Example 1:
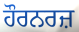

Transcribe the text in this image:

ਹੌਰਨਰਜ਼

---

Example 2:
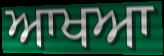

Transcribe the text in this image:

ਆਖਆ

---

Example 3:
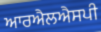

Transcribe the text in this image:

ਆਰਐਲਐਸਪੀ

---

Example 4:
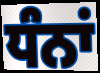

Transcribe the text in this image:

ਧੰਨਾਂ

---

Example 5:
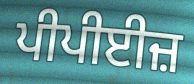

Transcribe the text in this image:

ਪੀਪੀਈਜ਼